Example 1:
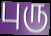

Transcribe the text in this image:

புரு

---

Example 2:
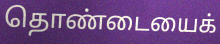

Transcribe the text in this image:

தொண்டையைக்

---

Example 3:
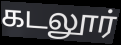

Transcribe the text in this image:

கடலூர்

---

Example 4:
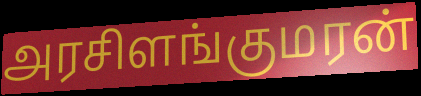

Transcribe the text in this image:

அரசிளங்குமரன்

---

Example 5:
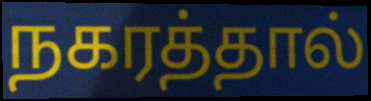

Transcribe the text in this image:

நகரத்தால்